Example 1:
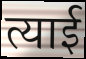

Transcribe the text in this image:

त्याई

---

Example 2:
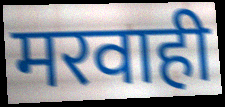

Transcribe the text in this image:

मरवाही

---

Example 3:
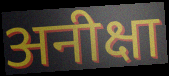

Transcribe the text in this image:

अनीक्षा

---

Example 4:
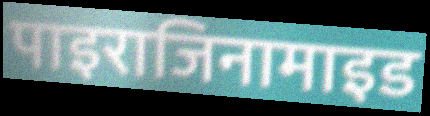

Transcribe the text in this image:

पाइराजिनामाइड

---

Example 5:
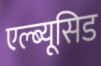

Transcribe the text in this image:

एल्ब्यूसिड